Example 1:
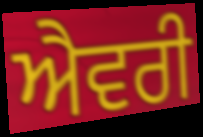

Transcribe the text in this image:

ਐਵਰੀ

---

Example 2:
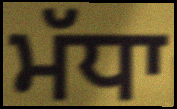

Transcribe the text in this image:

ਮੱਧਾ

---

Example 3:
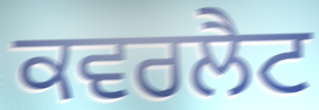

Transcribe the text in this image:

ਕਵਰਲੈਟ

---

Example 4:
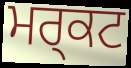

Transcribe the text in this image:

ਮਰ੍ਕਟ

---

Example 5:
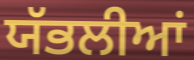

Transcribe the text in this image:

ਯੱਭਲੀਆਂ